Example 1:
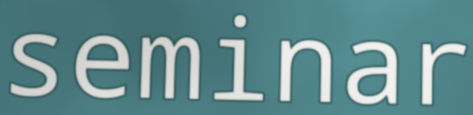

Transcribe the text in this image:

seminar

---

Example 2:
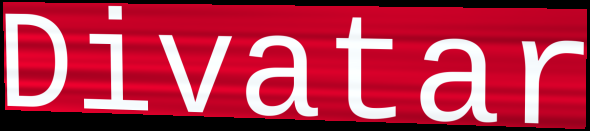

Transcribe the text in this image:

Divatar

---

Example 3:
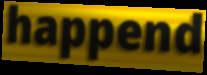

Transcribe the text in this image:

happend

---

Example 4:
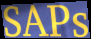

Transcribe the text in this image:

SAPs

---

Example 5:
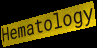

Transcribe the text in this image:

Hematology